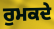
ਰੁਮਕਦੇ